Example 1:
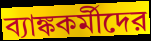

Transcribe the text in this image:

ব্যাঙ্ককর্মীদের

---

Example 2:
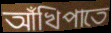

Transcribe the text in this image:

আঁখিপাতে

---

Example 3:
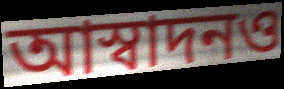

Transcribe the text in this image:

আস্বাদনও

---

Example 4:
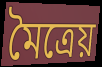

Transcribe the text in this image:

মৈত্রেয়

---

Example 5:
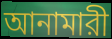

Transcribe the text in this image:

আনামারী